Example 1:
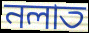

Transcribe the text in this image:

নলাত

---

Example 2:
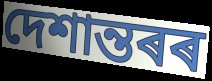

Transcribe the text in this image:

দেশান্তৰৰ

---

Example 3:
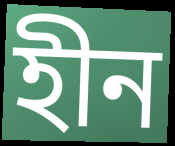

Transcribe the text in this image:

হীন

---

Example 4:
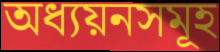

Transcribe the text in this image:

অধ্যয়নসমূহ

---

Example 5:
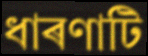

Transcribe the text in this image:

ধাৰণাটি